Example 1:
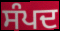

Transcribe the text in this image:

ਸੰਪਦ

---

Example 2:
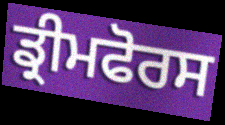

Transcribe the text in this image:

ਡ੍ਰੀਮਫੋਰਸ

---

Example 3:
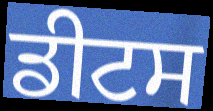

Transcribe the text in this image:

ਡੀਟਸ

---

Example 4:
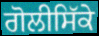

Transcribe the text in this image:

ਗੋਲੀਸਿੱਕੇ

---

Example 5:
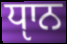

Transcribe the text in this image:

ਧੵਾਨ